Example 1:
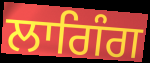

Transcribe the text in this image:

ਲਾਗਿੰਗ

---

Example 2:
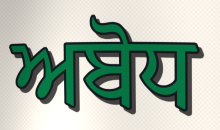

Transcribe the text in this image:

ਅਬੋਧ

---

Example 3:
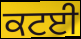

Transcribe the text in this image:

ਕਟਈ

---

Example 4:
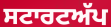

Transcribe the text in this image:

ਸਟਾਰਟਅੱਪ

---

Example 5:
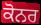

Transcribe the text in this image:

ਕੋਨਰ